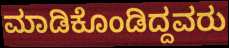
ಮಾಡಿಕೊಂಡಿದ್ದವರು